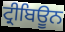
ਟ੍ਰੀਬਿਊਨ